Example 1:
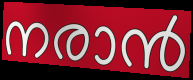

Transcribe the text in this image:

നരാൻ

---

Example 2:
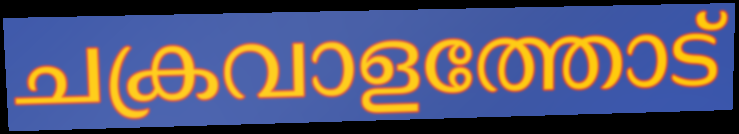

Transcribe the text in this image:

ചക്രവാളത്തോട്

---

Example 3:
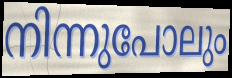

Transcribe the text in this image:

നിന്നുപോലും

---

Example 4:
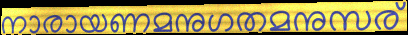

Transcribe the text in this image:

നാരായണമനുഗതമനുസര്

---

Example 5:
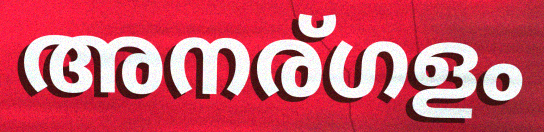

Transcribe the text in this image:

അനര്ഗളം